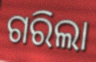
ଗରିଲା